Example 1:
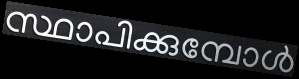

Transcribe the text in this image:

സ്ഥാപിക്കുമ്പോൾ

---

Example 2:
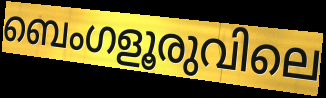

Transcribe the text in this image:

ബെംഗളൂരുവിലെ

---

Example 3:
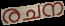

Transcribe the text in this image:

രചന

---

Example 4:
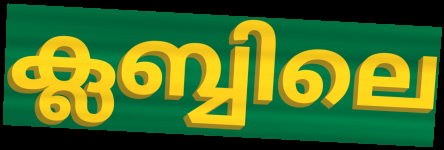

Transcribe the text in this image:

ക്ലബ്ബിലെ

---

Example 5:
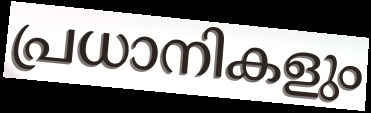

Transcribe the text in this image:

പ്രധാനികളും